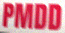
PMDD